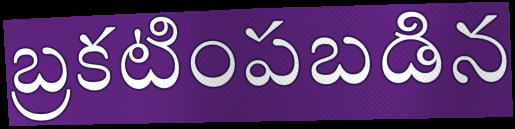
బ్రకటింపబడిన